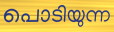
പൊടിയുന്ന